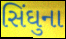
સિંઘુના